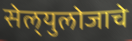
सेल्युलोजाचे